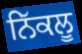
ਨਿੱਕਲੂ